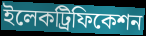
ইলেকট্রিফিকেশন